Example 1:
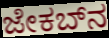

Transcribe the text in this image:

ಜೇಕಬ್‌ನ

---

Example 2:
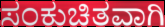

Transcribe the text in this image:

ಸಂಕುಚಿತವಾಗಿ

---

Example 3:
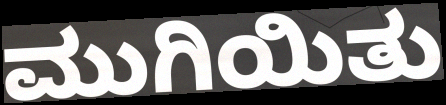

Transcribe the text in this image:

ಮುಗಿಯಿತು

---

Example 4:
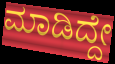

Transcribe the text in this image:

ಮಾಡಿದ್ದೇ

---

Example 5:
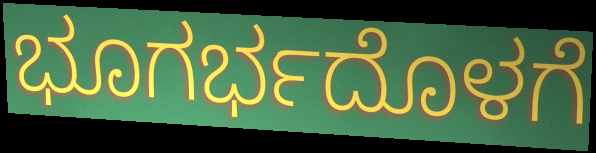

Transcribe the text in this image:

ಭೂಗರ್ಭದೊಳಗೆ